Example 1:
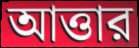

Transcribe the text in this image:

আত্তার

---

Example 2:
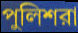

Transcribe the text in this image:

পুলিশরা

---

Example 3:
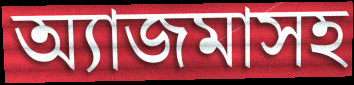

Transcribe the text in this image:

অ্যাজমাসহ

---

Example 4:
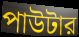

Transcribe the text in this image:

পাউটার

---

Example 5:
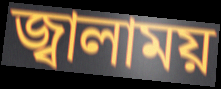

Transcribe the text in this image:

জ্বালাময়